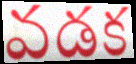
వడక